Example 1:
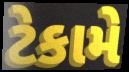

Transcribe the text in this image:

ટેકામે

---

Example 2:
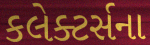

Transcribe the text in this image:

કલેક્ટર્સના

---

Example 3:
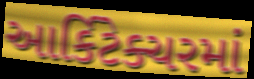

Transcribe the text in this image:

આર્કિટેક્ચરમાં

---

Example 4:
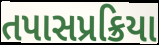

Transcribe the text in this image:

તપાસપ્રક્રિયા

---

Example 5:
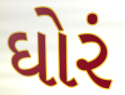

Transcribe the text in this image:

ઘોરં